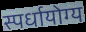
स्पर्धायोग्य